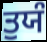
ਤੁਯੰ